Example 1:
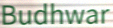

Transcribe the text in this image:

Budhwar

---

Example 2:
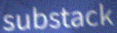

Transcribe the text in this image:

substack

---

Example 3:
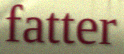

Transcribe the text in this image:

fatter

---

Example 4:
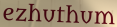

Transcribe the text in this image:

ezhuthum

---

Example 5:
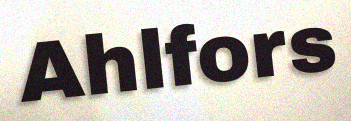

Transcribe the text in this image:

Ahlfors